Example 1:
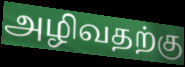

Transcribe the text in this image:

அழிவதற்கு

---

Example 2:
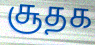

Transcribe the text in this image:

சூதக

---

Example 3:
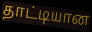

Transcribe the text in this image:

தாட்டியான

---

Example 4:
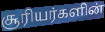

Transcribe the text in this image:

சூரியர்களின்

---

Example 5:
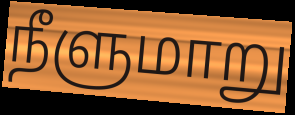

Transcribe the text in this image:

நீளுமாறு